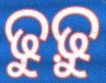
ଢୁଢ଼ୁ